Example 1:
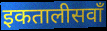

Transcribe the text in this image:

इकतालीसवाँ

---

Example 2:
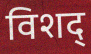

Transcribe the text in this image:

विशद्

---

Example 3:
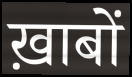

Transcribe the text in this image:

ख़ाबों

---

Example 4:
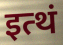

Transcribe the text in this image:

इत्थं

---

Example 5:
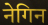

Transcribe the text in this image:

नेगिन